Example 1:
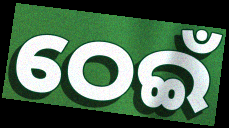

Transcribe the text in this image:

ଠେଇଁ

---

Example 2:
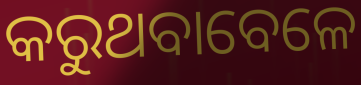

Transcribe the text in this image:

କରୁଥବାବେଳେ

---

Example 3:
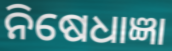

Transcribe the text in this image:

ନିଷେଧାଜ୍ଞା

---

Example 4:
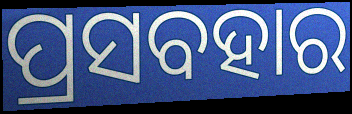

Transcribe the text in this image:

ପ୍ରସବହାର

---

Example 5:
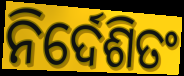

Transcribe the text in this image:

ନିର୍ଦେଶିତଂ